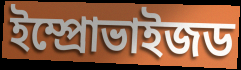
ইম্প্রোভাইজড